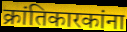
क्रांतिकारकांना